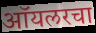
ऑयलरचा